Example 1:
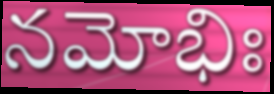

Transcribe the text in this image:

నమోభిః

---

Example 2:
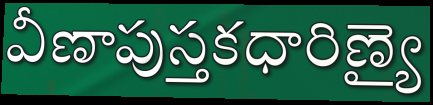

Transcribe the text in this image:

వీణాపుస్తకధారిణ్యై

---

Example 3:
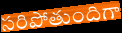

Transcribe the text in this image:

సరిపోతుందిగా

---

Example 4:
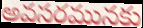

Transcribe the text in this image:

అవసరమునకు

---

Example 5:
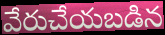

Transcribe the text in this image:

వేరుచేయబడిన